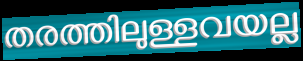
തരത്തിലുള്ളവയല്ല